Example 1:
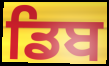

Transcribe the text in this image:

ਡਿਬ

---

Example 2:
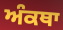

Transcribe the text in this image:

ਅੰਕਥਾ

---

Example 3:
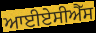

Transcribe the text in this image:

ਆਈਏਸੀਐੱਸ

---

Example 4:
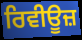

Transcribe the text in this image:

ਰਿਵੀਊਜ਼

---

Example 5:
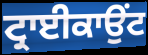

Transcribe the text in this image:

ਟ੍ਰਾਈਕਾਉਂਟ